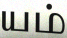
யம்